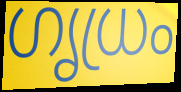
ഗൃധ്രം